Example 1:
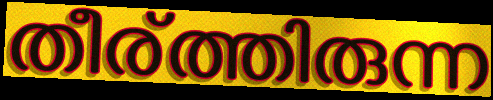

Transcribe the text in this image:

തീര്ത്തിരുന്ന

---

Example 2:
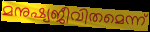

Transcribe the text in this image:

മനുഷ്യജീവിതമെന്ന്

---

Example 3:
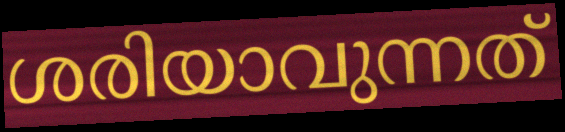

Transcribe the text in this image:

ശരിയാവുന്നത്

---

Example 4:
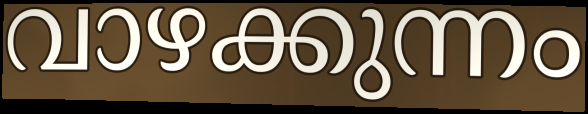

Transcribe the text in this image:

വാഴക്കുന്നം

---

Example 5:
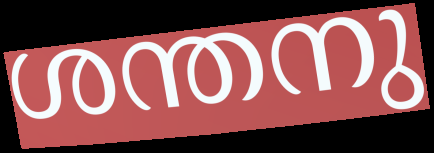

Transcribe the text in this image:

ശന്തനു